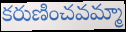
కరుణించవమ్మా